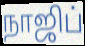
நாஜிப்